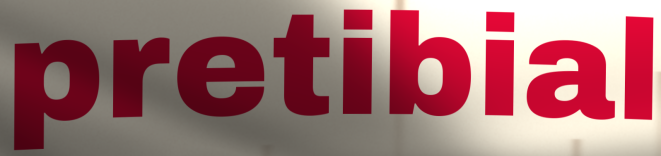
pretibial